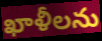
ఖాళీలను